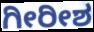
ಗೀರೀಶ